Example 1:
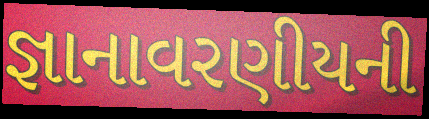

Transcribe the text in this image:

જ્ઞાનાવરણીયની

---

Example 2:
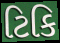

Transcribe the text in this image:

ટિકિ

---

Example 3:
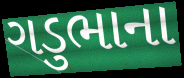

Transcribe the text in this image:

ગડુભાના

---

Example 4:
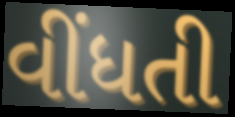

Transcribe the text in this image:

વીંધતી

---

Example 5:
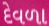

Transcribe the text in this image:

દેવળા